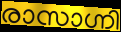
രാസാഗ്നി